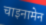
चाइनामेन